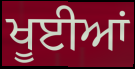
ਖੂਈਆਂ